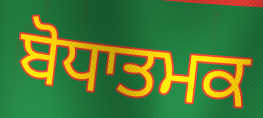
ਬੋਧਾਤਮਕ